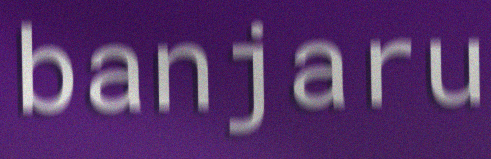
banjaru